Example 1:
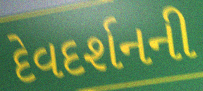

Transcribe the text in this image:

દેવદર્શનની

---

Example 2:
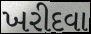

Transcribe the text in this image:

ખરીદવા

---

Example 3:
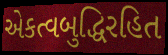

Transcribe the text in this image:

એકત્વબુદ્ધિરહિત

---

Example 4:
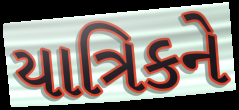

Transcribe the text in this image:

યાત્રિકને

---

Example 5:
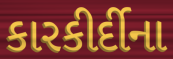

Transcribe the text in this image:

કારકીર્દીના